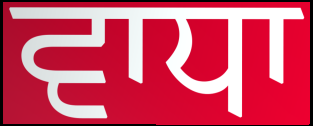
ਵਾਧਾ